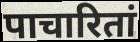
पाचारितां